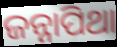
ଜନ୍ନାପିଥା